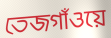
তেজগাঁওয়ে